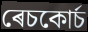
ৰেচকোৰ্চ